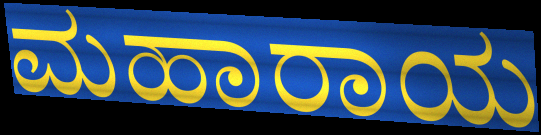
ಮಹಾರಾಯ